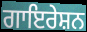
ਗਾਇਰੇਸ਼ਨ